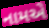
નામએ